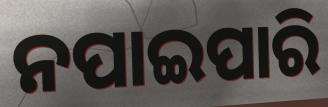
ନପାଇପାରି